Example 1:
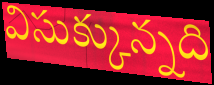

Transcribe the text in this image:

విసుక్కున్నది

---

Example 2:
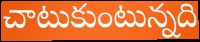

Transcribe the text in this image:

చాటుకుంటున్నది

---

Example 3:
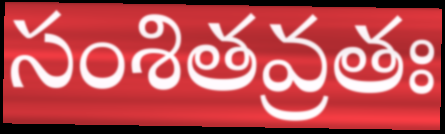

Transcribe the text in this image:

సంశితవ్రతః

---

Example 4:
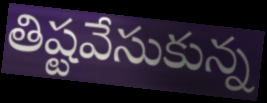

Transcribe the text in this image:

తిష్టవేసుకున్న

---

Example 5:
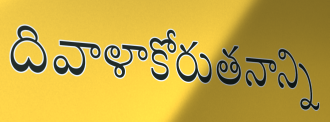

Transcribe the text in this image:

దివాళాకోరుతనాన్ని